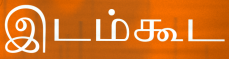
இடம்கூட